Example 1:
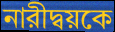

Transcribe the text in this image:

নারীদ্বয়কে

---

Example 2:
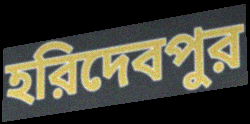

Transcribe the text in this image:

হরিদেবপুর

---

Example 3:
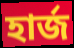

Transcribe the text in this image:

হার্জ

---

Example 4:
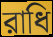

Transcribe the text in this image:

রাধি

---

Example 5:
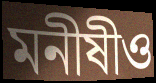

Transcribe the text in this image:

মনীষীও